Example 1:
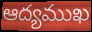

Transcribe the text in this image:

ఆద్యముఖ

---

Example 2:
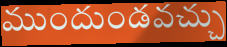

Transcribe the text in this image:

ముందుండవచ్చు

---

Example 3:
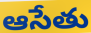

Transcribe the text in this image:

ఆసేతు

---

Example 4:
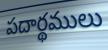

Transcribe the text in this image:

పదార్థములు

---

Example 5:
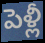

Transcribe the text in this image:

పెళ్లీ